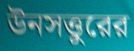
উনসত্তুরের